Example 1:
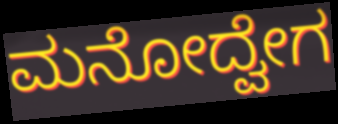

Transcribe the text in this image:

ಮನೋದ್ವೇಗ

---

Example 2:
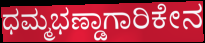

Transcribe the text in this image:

ಧಮ್ಮಭಣ್ಡಾಗಾರಿಕೇನ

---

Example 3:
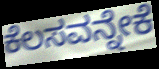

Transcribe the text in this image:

ಕೆಲಸವನ್ನೇಕೆ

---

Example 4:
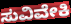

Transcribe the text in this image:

ಸುವಿವೇಕಿ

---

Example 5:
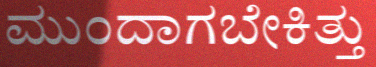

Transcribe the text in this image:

ಮುಂದಾಗಬೇಕಿತ್ತು